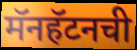
मॅनहॅटनची